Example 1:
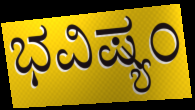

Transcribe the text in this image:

ಭವಿಷ್ಯಂ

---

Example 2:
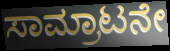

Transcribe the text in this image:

ಸಾಮ್ರಾಟನೇ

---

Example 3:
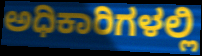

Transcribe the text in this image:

ಅಧಿಕಾರಿಗಳಲ್ಲಿ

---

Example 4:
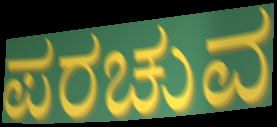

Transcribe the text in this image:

ಪರಚುವ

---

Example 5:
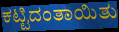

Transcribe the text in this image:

ಕಟ್ಟಿದಂತಾಯಿತು